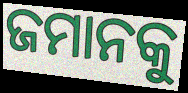
ଜମାନକୁ